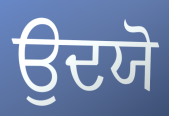
ਉਦਯੋ